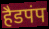
हैडपंप